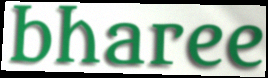
bharee